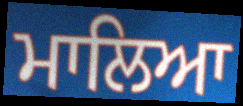
ਮਾਲਿਆ